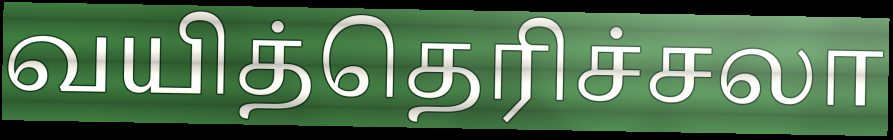
வயித்தெரிச்சலா